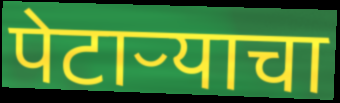
पेटाऱ्याचा